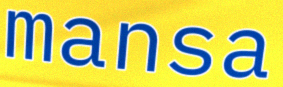
mansa